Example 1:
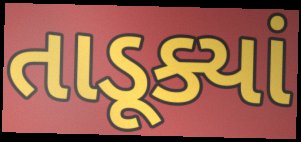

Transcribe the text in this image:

તાડૂક્યાં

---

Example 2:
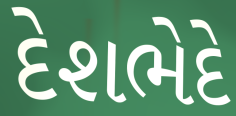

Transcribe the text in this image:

દેશભેદે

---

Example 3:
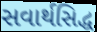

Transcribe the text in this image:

સવાર્થસિદ્ધ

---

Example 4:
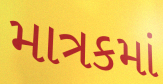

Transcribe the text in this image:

માત્રકમાં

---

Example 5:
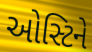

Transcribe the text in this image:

ઓસ્ટિને